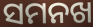
ସମନଖ